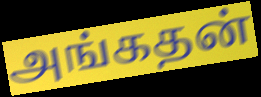
அங்கதன்